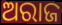
ଅରାଜ